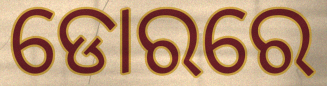
ଡୋରରେ